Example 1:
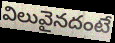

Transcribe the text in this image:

విలువైనదంటే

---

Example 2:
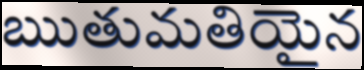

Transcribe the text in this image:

ఋతుమతియైన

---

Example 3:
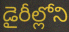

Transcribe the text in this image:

డైరీల్లోని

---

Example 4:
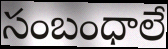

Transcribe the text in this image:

సంబంధాలే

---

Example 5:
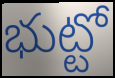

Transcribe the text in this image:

భుట్టో